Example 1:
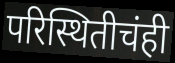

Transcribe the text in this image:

परिस्थितीचंही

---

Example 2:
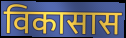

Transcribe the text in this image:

विकासास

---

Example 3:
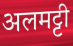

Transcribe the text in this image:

अलमट्टी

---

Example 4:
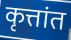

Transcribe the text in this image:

कृत्तांत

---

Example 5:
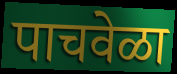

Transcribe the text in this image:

पाचवेळा